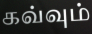
கவ்வும்